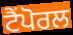
ਟੈਂਪੋਰਲ